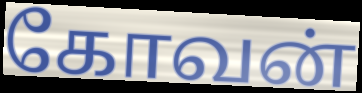
கோவன்